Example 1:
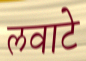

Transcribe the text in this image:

लवाटे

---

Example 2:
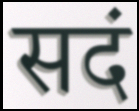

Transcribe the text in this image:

सदं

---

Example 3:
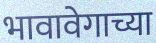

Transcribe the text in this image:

भावावेगाच्या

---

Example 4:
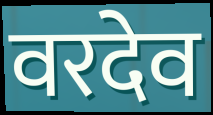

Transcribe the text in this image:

वरदेव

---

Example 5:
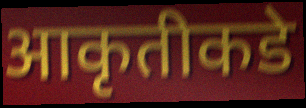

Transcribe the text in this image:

आकृतीकडे